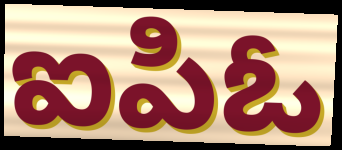
ఐపిఓ